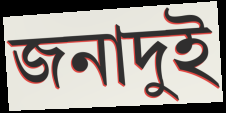
জনাদুই